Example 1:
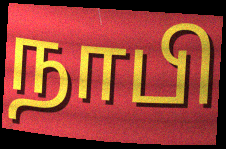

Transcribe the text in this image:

நாபி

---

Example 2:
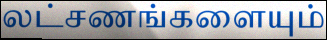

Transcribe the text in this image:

லட்சணங்களையும்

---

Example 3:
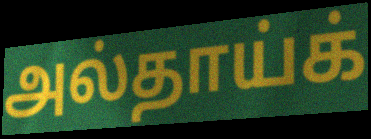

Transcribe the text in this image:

அல்தாய்க்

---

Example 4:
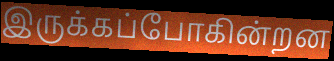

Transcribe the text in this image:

இருக்கப்போகின்றன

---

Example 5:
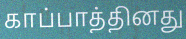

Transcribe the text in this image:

காப்பாத்தினது